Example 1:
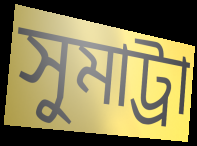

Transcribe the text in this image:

সুমাট্ৰা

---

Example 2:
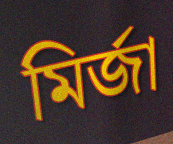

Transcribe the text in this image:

মিৰ্জা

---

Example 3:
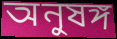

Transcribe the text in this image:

অনুষঙ্গ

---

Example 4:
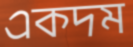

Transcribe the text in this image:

একদম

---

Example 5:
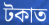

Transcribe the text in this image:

টকাত